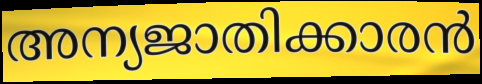
അന്യജാതിക്കാരൻ